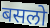
बसलो